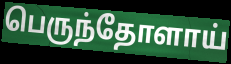
பெருந்தோளாய்